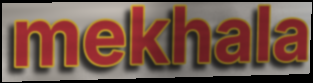
mekhala